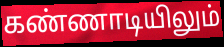
கண்ணாடியிலும்